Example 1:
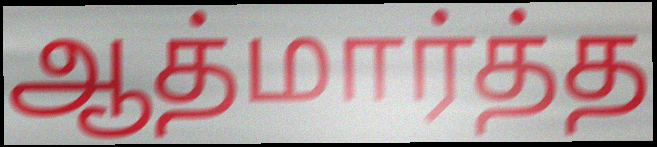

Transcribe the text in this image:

ஆத்மார்த்த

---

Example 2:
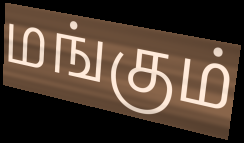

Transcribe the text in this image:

மங்கும்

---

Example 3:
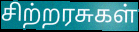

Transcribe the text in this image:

சிற்றரசுகள்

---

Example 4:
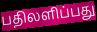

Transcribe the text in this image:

பதிலளிப்பது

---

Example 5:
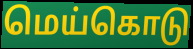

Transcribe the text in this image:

மெய்கொடு